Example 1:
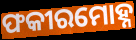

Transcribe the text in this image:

ଫକୀରମୋହ୍ନ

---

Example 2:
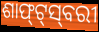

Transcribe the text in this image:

ଶାଫ୍‍ଟ୍‍ସ୍‍ବରୀ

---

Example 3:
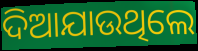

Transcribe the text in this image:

ଦିଆଯାଉଥିଲେ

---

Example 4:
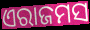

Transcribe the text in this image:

ଏରାଜମସ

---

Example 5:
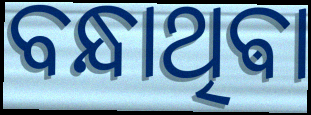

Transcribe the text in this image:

ବନ୍ଧାଥିଵା